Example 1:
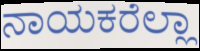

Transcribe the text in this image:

ನಾಯಕರೆಲ್ಲಾ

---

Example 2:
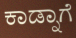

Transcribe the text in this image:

ಕಾಡ್ನಾಗೆ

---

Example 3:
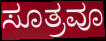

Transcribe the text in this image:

ಸೂತ್ರವೂ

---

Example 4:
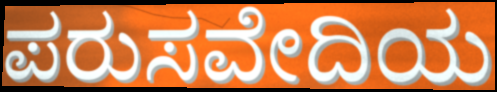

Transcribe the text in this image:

ಪರುಸವೇದಿಯ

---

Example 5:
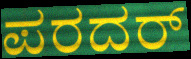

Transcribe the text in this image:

ಪರದರ್